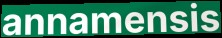
annamensis